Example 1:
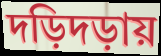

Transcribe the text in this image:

দড়িদড়ায়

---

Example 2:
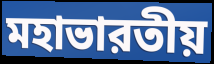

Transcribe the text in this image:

মহাভারতীয়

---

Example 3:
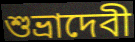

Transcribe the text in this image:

শুভ্রাদেবী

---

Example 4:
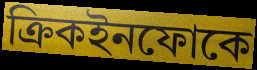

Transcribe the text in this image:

ক্রিকইনফোকে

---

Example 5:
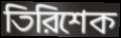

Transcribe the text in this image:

তিরিশেক